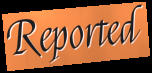
Reported